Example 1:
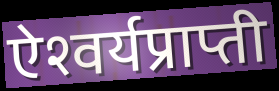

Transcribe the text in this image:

ऐश्वर्यप्राप्ती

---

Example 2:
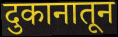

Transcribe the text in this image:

दुकानातून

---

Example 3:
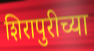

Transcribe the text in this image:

शिरापुरीच्या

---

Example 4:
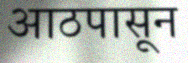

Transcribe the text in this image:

आठपासून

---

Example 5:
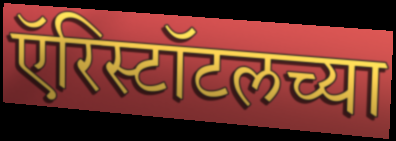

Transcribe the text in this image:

ऍरिस्टॉटलच्या